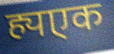
ह्यएक